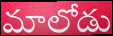
మాలోడు